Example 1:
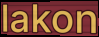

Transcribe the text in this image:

lakon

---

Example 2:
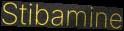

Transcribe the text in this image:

Stibamine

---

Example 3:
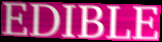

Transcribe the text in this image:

EDIBLE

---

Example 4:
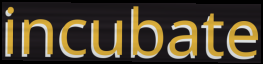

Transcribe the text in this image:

incubate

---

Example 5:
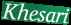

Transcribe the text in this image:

Khesari